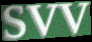
svv